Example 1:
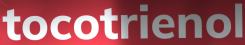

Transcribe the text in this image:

tocotrienol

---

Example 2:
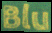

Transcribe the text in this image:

Blu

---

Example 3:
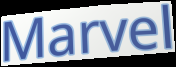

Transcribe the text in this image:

Marvel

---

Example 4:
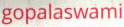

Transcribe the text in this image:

gopalaswami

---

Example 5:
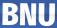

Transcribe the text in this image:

BNU